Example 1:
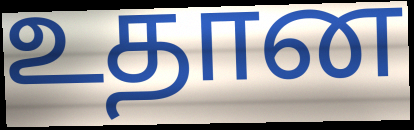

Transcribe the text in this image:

உதான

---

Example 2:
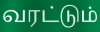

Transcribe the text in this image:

வரட்டும்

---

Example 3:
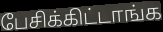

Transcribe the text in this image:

பேசிக்கிட்டாங்க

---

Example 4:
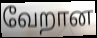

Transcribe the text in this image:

வேறான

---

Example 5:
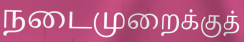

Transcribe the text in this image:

நடைமுறைக்குத்